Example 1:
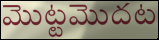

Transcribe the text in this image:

మొట్టమొదట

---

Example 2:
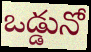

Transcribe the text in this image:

ఒడ్డునో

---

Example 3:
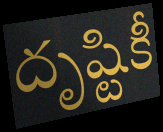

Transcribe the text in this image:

దృష్టికీ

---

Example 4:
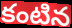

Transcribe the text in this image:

కంటిన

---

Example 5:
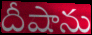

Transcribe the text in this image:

దీషాను